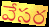
వేసర